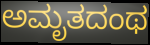
ಅಮೃತದಂಥ